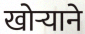
खोऱ्याने